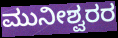
ಮುನೀಶ್ವರರ